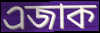
এজাক